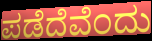
ಪಡೆದೆವೆಂದು